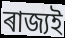
ৰাজ্যই